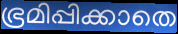
ഭ്രമിപ്പിക്കാതെ